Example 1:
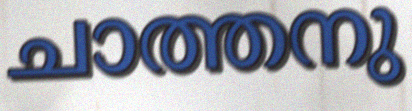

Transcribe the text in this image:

ചാത്തനു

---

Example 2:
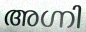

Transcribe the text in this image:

അഗ്നി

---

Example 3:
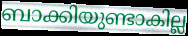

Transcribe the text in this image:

ബാക്കിയുണ്ടാകില്ല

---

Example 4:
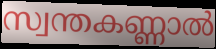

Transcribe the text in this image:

സ്വന്തകണ്ണാൽ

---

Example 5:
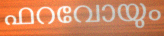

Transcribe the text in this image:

ഫറവോയും